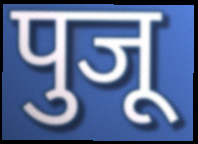
पुजू